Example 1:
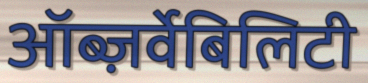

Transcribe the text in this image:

ऑब्ज़र्वेबिलिटी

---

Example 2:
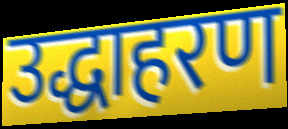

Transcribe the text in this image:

उद्धाहरण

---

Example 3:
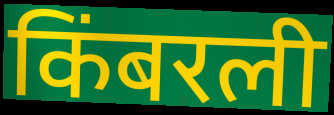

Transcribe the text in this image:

किंबरली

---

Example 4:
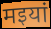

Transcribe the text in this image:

मइयां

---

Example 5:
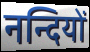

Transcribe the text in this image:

नन्दियों